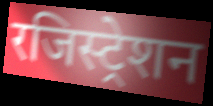
रजिस्‍ट्रेशन